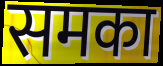
समका